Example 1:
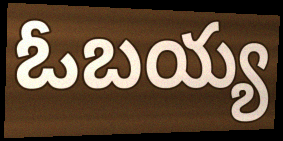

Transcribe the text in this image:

ఓబయ్య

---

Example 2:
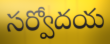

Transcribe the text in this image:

సర్వోదయ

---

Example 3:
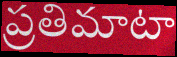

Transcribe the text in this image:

ప్రతిమాటా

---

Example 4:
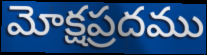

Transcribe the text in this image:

మోక్షప్రదము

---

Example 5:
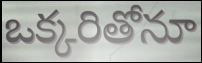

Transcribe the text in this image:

ఒక్కరితోనూ